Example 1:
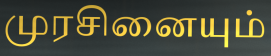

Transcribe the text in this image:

முரசினையும்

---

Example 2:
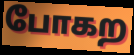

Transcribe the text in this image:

போகற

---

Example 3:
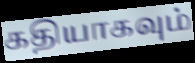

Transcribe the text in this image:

கதியாகவும்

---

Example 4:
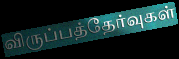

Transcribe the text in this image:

விருப்பத்தேர்வுகள்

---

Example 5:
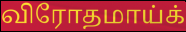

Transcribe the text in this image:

விரோதமாய்க்